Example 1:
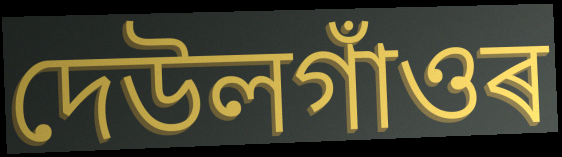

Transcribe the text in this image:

দেউলগাঁওৰ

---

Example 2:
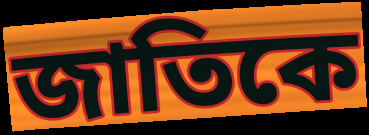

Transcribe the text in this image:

জাতিকে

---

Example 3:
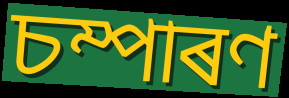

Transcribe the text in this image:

চম্পাৰণ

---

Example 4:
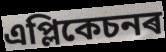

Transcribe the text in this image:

এপ্লিকেচনৰ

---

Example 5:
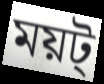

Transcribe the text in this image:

ময়ট্